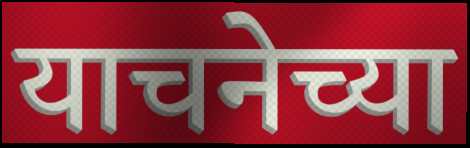
याचनेच्या